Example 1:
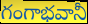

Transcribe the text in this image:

గంగాభవానీ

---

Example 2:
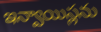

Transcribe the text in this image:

ఇన్వాయిస్లను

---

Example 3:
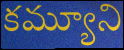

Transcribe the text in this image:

కమ్యూని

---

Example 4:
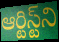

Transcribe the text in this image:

ఆర్టిస్ట్‌ని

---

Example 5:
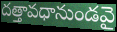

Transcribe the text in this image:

దత్తావధానుండవై